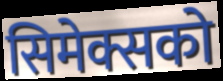
सिमेक्सको